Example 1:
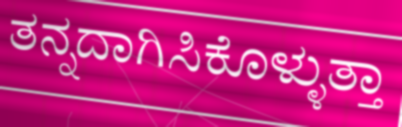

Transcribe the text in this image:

ತನ್ನದಾಗಿಸಿಕೊಳ್ಳುತ್ತಾ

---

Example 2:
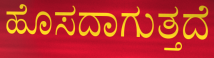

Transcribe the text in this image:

ಹೊಸದಾಗುತ್ತದೆ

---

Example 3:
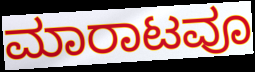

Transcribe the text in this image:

ಮಾರಾಟವೂ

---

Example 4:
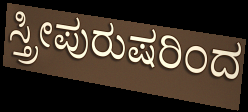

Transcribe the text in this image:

ಸ್ತ್ರೀಪುರುಷರಿಂದ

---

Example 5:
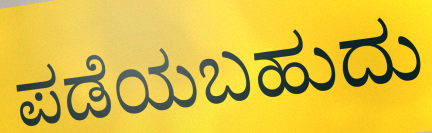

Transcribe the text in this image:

ಪಡೆಯಬಹುದು